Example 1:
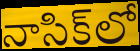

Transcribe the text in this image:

నాసిక్‌లో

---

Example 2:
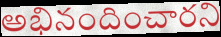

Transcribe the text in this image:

అభినందించారని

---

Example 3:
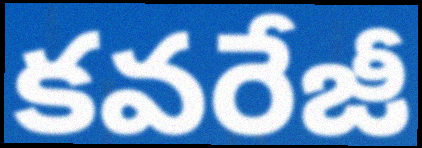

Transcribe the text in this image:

కవరేజీ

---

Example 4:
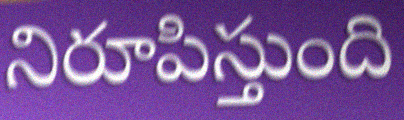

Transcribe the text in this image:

నిరూపిస్తుంది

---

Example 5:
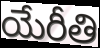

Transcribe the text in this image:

యేరీతి